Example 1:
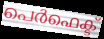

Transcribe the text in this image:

പെർഫെക്ട്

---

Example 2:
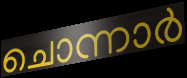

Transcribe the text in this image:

ചൊന്നാർ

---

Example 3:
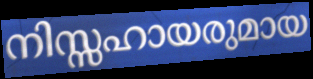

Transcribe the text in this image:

നിസ്സഹായരുമായ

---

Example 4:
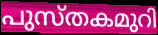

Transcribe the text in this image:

പുസ്തകമുറി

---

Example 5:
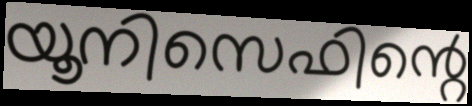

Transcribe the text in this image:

യൂനിസെഫിന്റെ